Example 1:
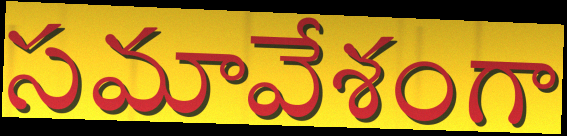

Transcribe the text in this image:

సమావేశంగా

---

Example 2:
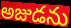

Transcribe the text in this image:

అజుడను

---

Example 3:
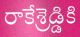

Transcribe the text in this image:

రాకేశ్రెడ్డికి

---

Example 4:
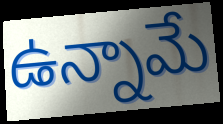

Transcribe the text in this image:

ఉన్నామే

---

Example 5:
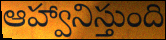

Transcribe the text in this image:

ఆహ్వానిస్తుంది